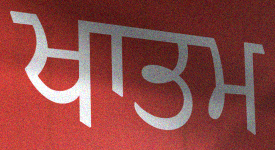
ਖਾਤਮ